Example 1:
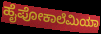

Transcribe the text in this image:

ಹೈಪೋಕಾಲೆಮಿಯಾ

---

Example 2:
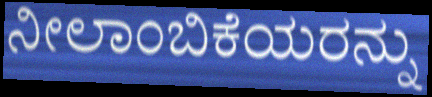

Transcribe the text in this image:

ನೀಲಾಂಬಿಕೆಯರನ್ನು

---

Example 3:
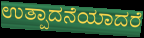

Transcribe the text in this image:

ಉತ್ಪಾದನೆಯಾದರೆ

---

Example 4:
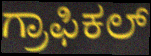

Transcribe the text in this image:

ಗ್ರಾಫಿಕಲ್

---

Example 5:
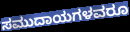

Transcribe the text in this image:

ಸಮುದಾಯಗಳವರೂ